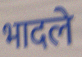
भादले